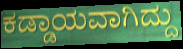
ಕಡ್ಡಾಯವಾಗಿದ್ದು